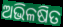
ଅଭିଳଷିତ